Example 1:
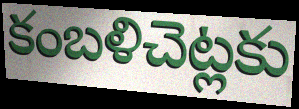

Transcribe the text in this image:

కంబళిచెట్లకు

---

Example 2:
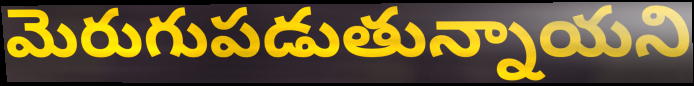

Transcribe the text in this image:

మెరుగుపడుతున్నాయని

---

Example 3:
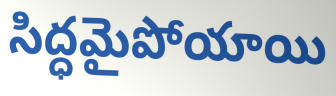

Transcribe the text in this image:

సిద్ధమైపోయాయి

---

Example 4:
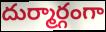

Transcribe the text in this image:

దుర్మార్గంగా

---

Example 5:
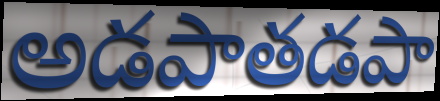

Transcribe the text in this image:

అడపాతడపా